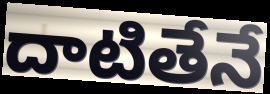
దాటితేనే